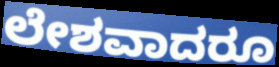
ಲೇಶವಾದರೂ